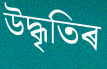
উদ্ধৃতিৰ